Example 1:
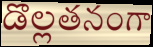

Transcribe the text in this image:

డొల్లతనంగా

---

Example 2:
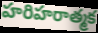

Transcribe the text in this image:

హరిహరాత్మక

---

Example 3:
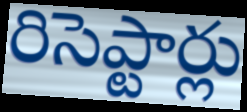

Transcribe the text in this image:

రిసెప్టార్లు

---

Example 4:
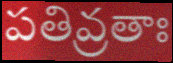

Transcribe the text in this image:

పతివ్రతాః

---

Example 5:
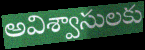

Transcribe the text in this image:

అవిశ్వాసులకు